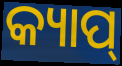
କ୍ୟାପ୍